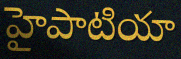
హైపాటియా